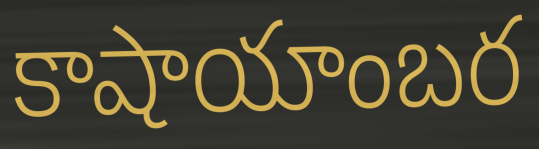
కాషాయాంబర